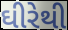
ઘીરેથી